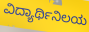
ವಿದ್ಯಾರ್ಥಿನಿಲಯ